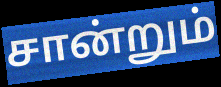
சான்றும்